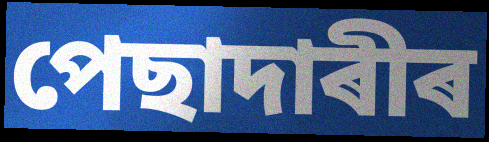
পেছাদাৰীৰ